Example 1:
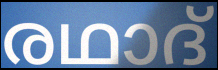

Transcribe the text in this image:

രഥാദ്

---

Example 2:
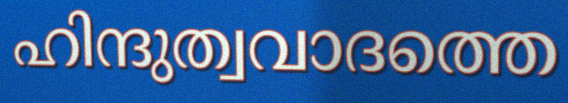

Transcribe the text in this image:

ഹിന്ദുത്വവാദത്തെ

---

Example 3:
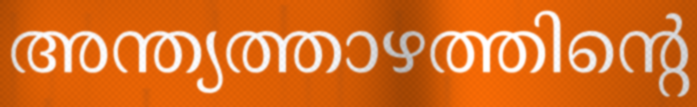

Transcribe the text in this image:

അന്ത്യത്താഴത്തിന്റെ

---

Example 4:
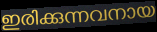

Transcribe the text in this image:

ഇരിക്കുന്നവനായ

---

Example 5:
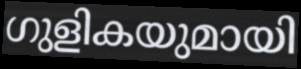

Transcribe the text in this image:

ഗുളികയുമായി